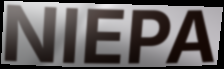
NIEPA